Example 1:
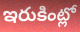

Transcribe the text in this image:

ఇరుకింట్లో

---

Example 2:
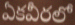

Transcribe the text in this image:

ఏకవీరలో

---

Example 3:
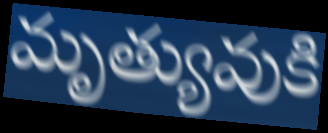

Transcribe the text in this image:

మృత్యువుకి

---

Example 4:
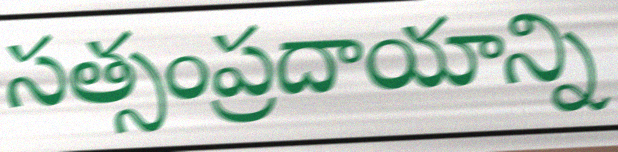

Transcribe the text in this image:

సత్సంప్రదాయాన్ని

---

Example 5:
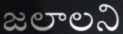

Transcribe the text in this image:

జలాలని